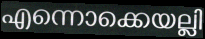
എന്നൊക്കെയല്ലി